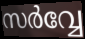
സർവ്വേ